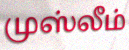
முஸ்லீம்